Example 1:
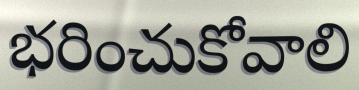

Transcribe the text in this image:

భరించుకోవాలి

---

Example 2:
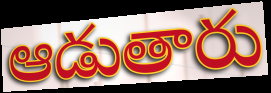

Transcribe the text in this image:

ఆడుతారు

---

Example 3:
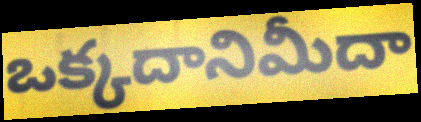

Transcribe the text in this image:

ఒక్కదానిమీదా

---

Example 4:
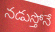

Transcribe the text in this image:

నడుస్తోనే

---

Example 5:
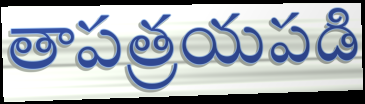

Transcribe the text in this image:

తాపత్రయపడి